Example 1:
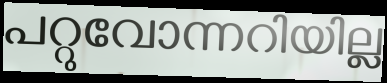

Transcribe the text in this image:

പറ്റുവോന്നറിയില്ല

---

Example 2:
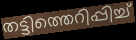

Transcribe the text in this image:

തട്ടിത്തെറിപ്പിച്ച്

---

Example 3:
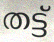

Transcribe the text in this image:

തട്ട്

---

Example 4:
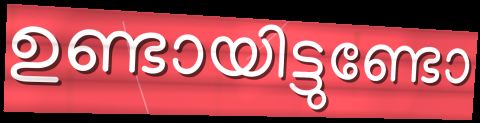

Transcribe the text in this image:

ഉണ്ടായിട്ടുണ്ടോ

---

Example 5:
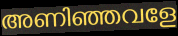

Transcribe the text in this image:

അണിഞ്ഞവളേ